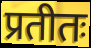
प्रतीतः